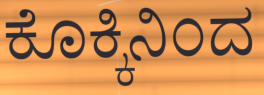
ಕೊಕ್ಕಿನಿಂದ